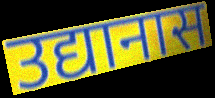
उद्यानास